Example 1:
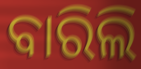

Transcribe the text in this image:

ବାରିଲି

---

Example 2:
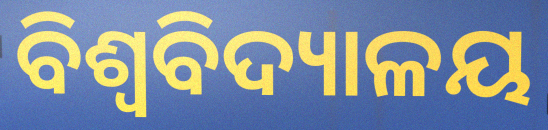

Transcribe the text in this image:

ବିଶ୍ଵବିଦ୍ୟାଳୟ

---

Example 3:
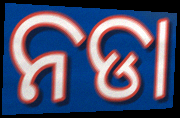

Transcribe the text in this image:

ନଡା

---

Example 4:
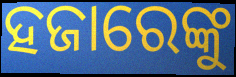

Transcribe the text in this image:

ହଜାରେଙ୍କୁ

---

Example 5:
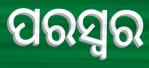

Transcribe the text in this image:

ପରସ୍ୱର